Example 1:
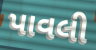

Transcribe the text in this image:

પાવલી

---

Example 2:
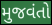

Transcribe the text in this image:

મુજવંતો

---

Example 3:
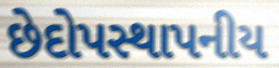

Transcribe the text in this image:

છેદોપસ્થાપનીય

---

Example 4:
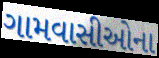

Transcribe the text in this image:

ગામવાસીઓના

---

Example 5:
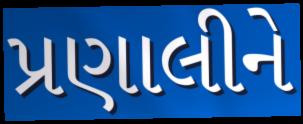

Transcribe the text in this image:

પ્રણાલીને